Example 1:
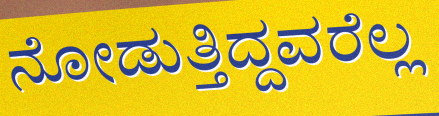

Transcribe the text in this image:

ನೋಡುತ್ತಿದ್ದವರೆಲ್ಲ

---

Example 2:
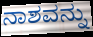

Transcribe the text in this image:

ನಾಶವನ್ನು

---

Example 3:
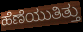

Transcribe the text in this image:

ಹೆಣೆಯುತಿತ್ತು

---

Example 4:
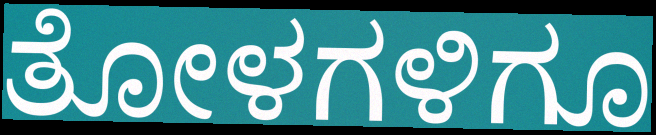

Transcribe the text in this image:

ತೋಳಗಳಿಗೂ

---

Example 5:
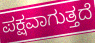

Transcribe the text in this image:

ಪಕ್ಷವಾಗುತ್ತದೆ